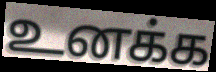
உனக்க